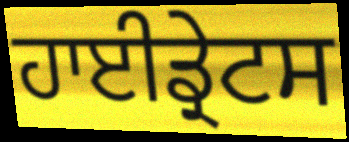
ਹਾਈਡ੍ਰੇਟਸ